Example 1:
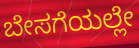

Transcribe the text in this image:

ಬೇಸಗೆಯಲ್ಲೇ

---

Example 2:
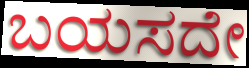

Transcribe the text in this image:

ಬಯಸದೇ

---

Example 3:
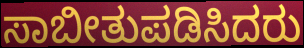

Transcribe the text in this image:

ಸಾಬೀತುಪಡಿಸಿದರು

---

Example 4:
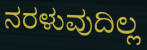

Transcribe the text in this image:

ನರಳುವುದಿಲ್ಲ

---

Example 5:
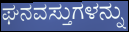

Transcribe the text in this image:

ಘನವಸ್ತುಗಳನ್ನು